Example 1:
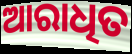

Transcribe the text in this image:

ଆରାଧିତ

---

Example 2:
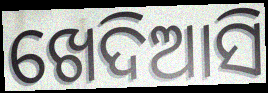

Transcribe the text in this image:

ଖେଦିଆସି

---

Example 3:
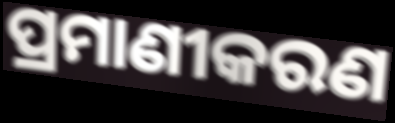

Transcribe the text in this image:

ପ୍ରମାଣୀକରଣ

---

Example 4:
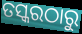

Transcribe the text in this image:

ତସ୍କରଠାରୁ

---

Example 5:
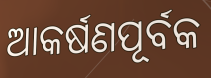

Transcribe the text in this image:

ଆକର୍ଷଣପୂର୍ବକ